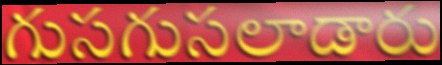
గుసగుసలాడారు